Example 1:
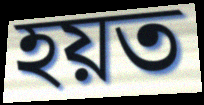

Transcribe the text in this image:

হয়ত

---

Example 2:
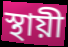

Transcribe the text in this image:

স্থায়ী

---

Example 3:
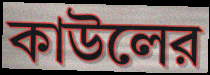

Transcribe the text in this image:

কাউলের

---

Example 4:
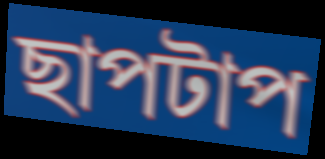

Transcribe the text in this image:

ছাপটাপ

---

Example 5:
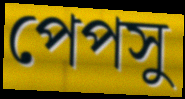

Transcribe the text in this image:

পেপসু